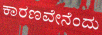
ಕಾರಣವೇನೆಂದು